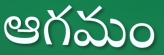
ఆగమం